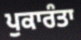
ਪੁਕਾਰੰਤਾ